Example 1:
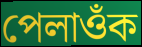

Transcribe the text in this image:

পেলাওঁক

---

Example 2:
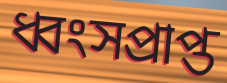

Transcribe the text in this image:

ধ্বংসপ্ৰাপ্ত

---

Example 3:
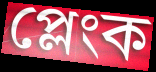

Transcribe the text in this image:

প্লেংক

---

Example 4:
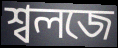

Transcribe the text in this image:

শ্বলজে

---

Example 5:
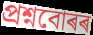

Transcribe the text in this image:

প্ৰশ্নবোৰৰ